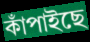
কাঁপাইছে